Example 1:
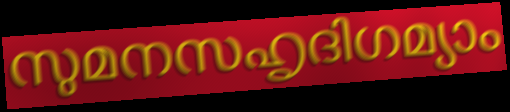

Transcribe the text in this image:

സുമനസഹൃദിഗമ്യാം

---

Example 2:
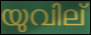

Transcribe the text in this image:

യുവില്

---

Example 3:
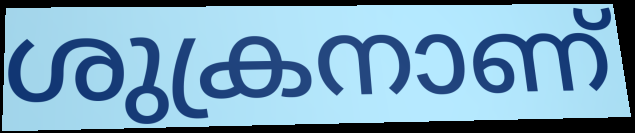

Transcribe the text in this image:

ശുക്രനാണ്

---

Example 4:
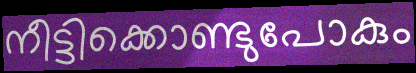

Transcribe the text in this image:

നീട്ടിക്കൊണ്ടുപോകും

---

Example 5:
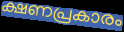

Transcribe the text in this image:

ക്ഷണപ്രകാരം